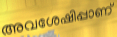
അവശേഷിപ്പാണ്